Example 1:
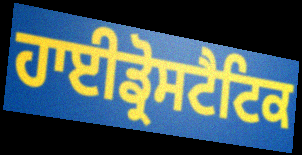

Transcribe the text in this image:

ਹਾਈਡ੍ਰੋਸਟੈਟਿਕ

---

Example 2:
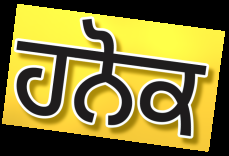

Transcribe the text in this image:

ਹਨੋਕ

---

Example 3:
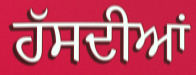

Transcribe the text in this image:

ਹੱਸਦੀਆਂ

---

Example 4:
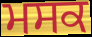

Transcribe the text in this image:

ਮਸਕ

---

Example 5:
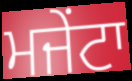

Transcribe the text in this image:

ਮਜੇਂਟਾ